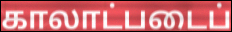
காலாட்படைப்